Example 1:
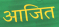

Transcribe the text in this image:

आजित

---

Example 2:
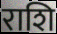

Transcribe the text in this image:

राशि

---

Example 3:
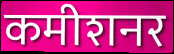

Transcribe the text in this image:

कमीशनर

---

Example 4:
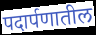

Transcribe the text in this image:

पदार्पणातील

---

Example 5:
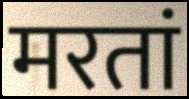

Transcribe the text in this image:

मरतां